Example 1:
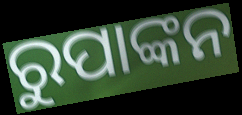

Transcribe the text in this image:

ରୁପାଙ୍କନ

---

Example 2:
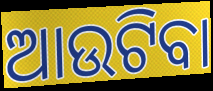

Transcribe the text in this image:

ଆଉଟିବା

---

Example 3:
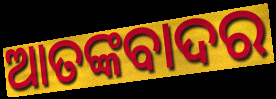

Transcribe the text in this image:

ଆତଙ୍କବାଦର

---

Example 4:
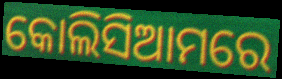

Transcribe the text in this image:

କୋଲିସିଆମରେ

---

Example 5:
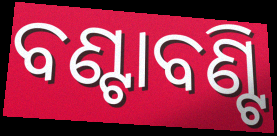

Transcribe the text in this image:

ବଣ୍ଟାବଣ୍ଟି